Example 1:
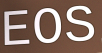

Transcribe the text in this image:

EOS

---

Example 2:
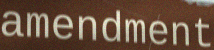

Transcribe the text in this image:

amendment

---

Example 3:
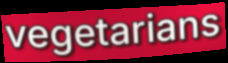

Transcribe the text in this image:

vegetarians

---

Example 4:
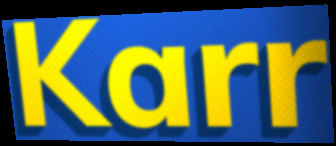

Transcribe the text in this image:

Karr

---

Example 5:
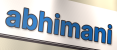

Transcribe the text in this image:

abhimani